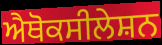
ਐਥੋਕਸੀਲੇਸ਼ਨ